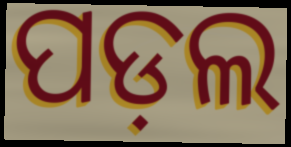
ପଡ଼ଲ